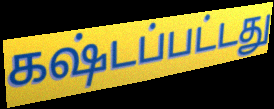
கஷ்டப்பட்டது